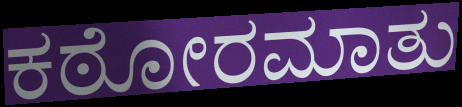
ಕಠೋರಮಾತು